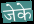
जेके